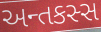
અન્તકસ્સ